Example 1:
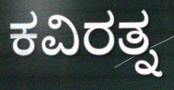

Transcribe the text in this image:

ಕವಿರತ್ನ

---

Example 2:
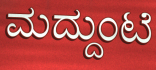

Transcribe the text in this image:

ಮದ್ದುಂಟೆ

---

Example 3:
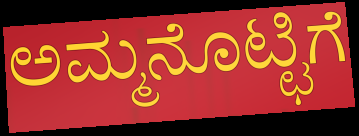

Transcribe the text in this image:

ಅಮ್ಮನೊಟ್ಟಿಗೆ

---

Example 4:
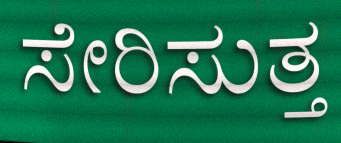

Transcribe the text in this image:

ಸೇರಿಸುತ್ತ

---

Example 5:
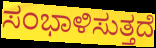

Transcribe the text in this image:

ಸಂಭಾಳಿಸುತ್ತದೆ